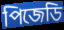
পিজেডি